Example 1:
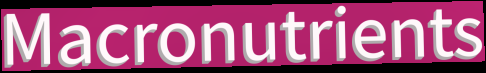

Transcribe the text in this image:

Macronutrients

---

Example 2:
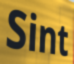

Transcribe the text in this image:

Sint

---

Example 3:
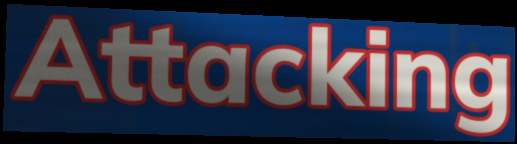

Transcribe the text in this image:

Attacking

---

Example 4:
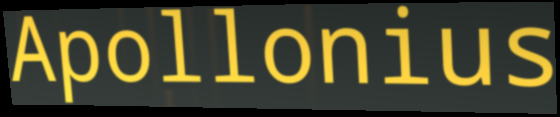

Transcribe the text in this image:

Apollonius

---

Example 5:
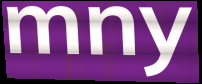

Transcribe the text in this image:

mny